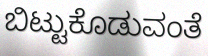
ಬಿಟ್ಟುಕೊಡುವಂತೆ